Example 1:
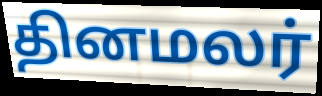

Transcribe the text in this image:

தினமலர்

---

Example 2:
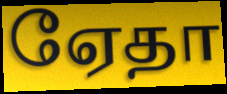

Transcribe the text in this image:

ஏேதா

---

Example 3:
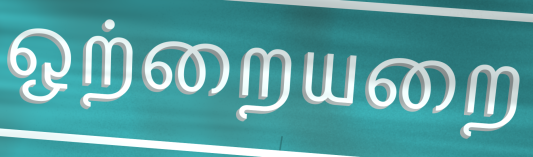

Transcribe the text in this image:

ஒற்றையறை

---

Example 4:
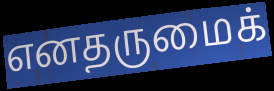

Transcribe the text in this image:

எனதருமைக்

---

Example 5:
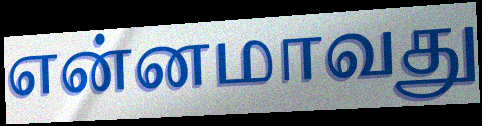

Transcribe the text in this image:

என்னமாவது